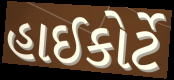
હાઈકોર્ટે